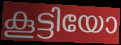
കൂട്ടിയോ